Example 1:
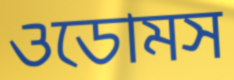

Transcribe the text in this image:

ওডোমস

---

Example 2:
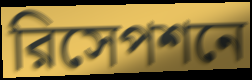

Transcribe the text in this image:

রিসেপশনে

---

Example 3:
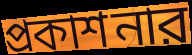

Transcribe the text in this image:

প্রকাশনার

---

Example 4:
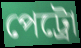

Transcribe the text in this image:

পেট্রো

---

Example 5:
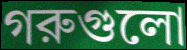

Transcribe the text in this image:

গরুগুলো